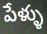
పేళ్ళు